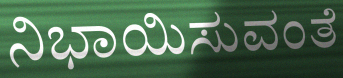
ನಿಭಾಯಿಸುವಂತೆ